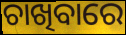
ଚାଖିବାରେ